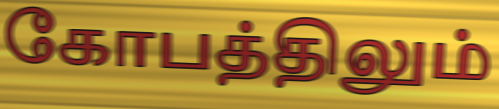
கோபத்திலும்